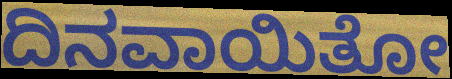
ದಿನವಾಯಿತೋ